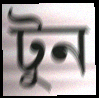
টুন